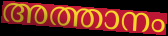
അത്താനം